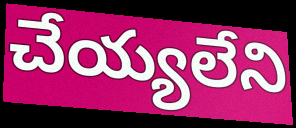
చేయ్యలేని